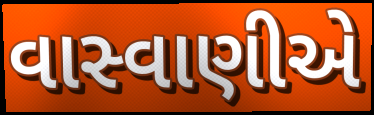
વાસ્વાણીએ